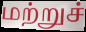
மற்றுச்